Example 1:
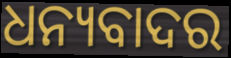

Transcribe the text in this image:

ଧନ୍ୟବାଦର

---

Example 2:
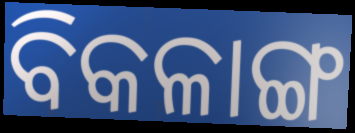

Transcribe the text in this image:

ବିକଳାଙ୍ଗ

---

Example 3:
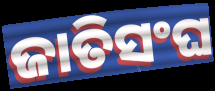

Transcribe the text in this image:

ଜାତିସଂଘ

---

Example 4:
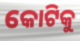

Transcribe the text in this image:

କୋଟିକୁ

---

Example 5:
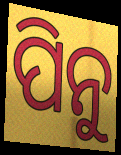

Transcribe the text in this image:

ପିନୁ